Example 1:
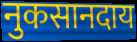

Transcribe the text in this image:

नुकसानदाय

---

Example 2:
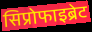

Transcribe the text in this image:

सिप्रोफाइब्रेट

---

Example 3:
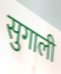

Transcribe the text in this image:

सुगाली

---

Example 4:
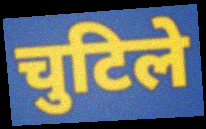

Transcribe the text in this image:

चुटिले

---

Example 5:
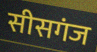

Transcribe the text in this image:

सीसगंज